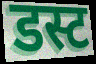
डस्ट